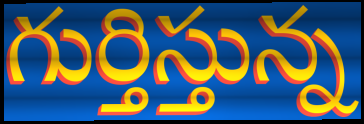
గుర్తిస్తున్న